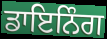
ਡਾਇਨਿੰਗ